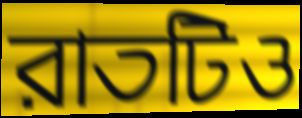
রাতটিও